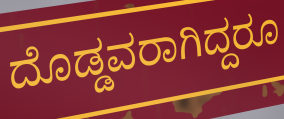
ದೊಡ್ಡವರಾಗಿದ್ದರೂ